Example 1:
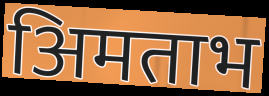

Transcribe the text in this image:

अिमताभ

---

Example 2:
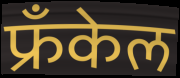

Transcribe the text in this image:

फ्रँकेल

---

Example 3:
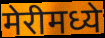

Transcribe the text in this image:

मेरीमध्ये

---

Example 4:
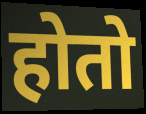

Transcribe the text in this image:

होतो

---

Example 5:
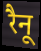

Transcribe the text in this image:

रैनू